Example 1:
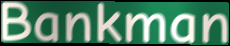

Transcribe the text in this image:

Bankman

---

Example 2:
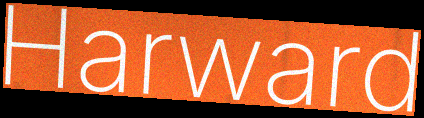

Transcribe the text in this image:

Harward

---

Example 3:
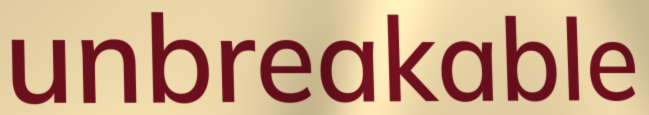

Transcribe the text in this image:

unbreakable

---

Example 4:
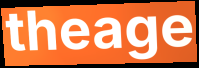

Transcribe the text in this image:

theage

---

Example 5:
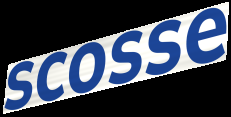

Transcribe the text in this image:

scosse